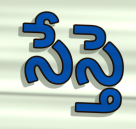
సేస్తె